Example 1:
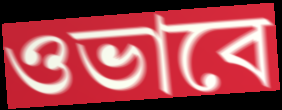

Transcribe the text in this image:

ওভাবে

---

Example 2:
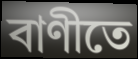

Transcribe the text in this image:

বাণীতে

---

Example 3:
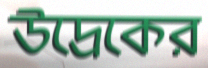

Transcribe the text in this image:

উদ্রেকের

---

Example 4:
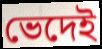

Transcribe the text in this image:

ভেদেই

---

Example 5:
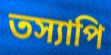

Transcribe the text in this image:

তস্যাপি